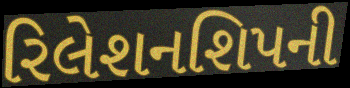
રિલેશનશિપની